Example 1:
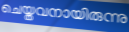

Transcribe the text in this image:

ചെയ്തവനായിരുന്നു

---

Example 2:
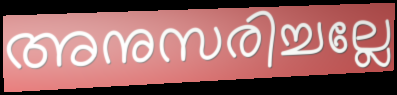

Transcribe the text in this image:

അനുസരിച്ചല്ലേ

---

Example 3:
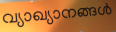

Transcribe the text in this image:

വ്യാഖ്യാനങ്ങൾ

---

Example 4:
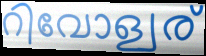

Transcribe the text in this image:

റിവോള്വര്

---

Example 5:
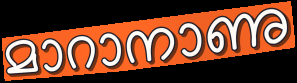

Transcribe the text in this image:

മാറാനാണു